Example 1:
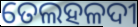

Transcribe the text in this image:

ତେଲହଳଦୀ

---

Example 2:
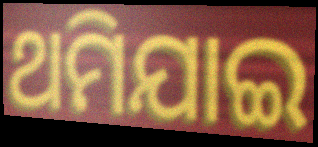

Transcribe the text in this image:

ଥମିଯାଇ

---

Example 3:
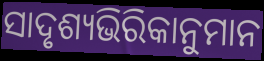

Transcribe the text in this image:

ସାଦୃଶ୍ଯଭିରିକାନୁମାନ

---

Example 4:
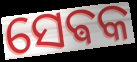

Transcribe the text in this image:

ସେଵକ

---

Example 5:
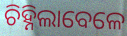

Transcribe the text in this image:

ଚିହ୍ନିଲାବେଳେ